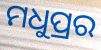
ମଧୁପ୍ରର